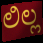
ಲಿಲ್ಲ